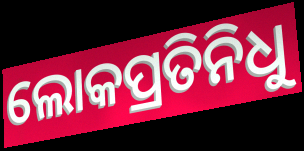
ଲୋକପ୍ରତିନିଧୁ